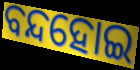
ବନ୍ଦହୋଇ